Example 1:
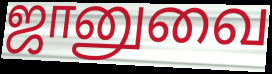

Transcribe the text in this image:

ஜானுவை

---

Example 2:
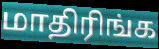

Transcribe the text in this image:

மாதிரிங்க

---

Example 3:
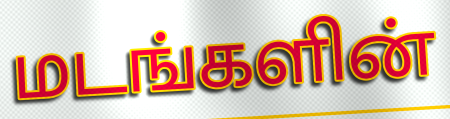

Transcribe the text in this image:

மடங்களின்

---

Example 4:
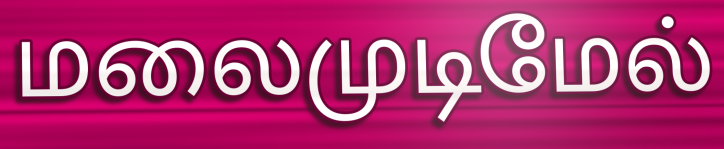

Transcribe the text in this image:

மலைமுடிமேல்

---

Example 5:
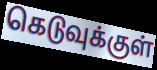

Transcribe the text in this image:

கெடுவுக்குள்